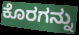
ಕೊರಗನ್ನು